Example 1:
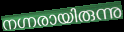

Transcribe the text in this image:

നഗ്നരായിരുന്നു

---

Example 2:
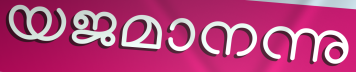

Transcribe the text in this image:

യജമാനന്നു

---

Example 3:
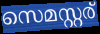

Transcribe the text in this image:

സെമസ്റ്റര്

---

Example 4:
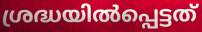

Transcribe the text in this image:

ശ്രദ്ധയിൽപ്പെട്ടത്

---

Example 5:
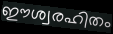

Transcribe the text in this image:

ഈശ്വരഹിതം